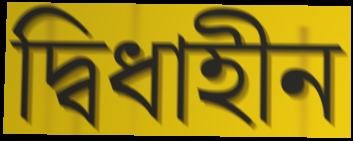
দ্বিধাহীন